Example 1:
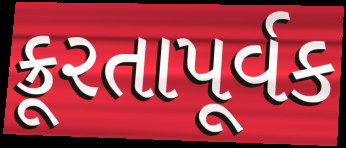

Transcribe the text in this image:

ક્રૂરતાપૂર્વક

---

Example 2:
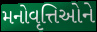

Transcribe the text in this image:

મનોવૃત્તિઓને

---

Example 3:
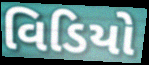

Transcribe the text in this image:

વિડિયો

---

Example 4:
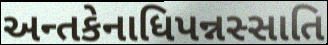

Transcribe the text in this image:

અન્તકેનાધિપન્નસ્સાતિ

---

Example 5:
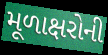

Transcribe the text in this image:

મૂળાક્ષરોની